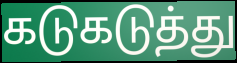
கடுகடுத்து